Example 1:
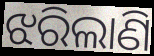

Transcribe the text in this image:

ଝରିଲାଣି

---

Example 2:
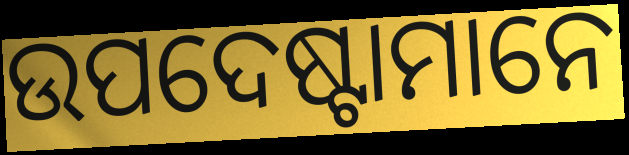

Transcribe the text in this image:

ଉପଦେଷ୍ଟାମାନେ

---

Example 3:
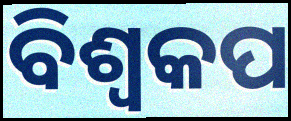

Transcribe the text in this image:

ବିଶ୍ବକପ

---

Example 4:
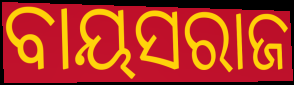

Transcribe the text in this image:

ବାୟସରାଜ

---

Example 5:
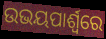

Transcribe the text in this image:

ଉଭୟପାର୍ଶ୍ବରେ